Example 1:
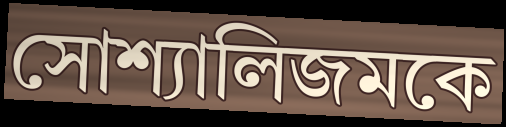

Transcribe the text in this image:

সোশ্যালিজমকে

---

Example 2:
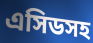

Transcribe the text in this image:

এসিডসহ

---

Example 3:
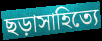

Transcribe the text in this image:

ছড়াসাহিত্যে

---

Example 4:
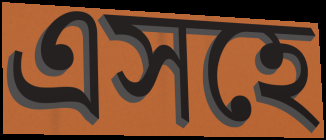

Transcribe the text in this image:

এসহে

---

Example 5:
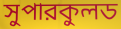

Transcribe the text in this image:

সুপারকুলড